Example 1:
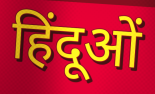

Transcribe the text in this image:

हिंदूओं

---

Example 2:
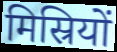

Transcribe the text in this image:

मिस्रियों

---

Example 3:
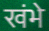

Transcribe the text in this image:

खंभे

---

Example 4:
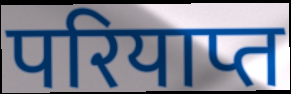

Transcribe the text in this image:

परियाप्त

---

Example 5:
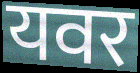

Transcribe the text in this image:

यवर